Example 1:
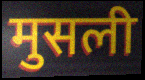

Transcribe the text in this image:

मुसली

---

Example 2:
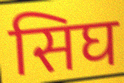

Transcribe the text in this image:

सिघ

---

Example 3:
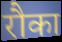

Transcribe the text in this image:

रौका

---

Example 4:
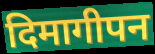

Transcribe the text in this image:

दिमागीपन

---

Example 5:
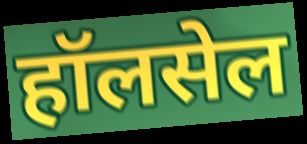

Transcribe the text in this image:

हॉलसेल